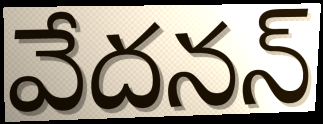
వేదనన్